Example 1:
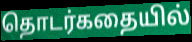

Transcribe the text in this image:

தொடர்கதையில்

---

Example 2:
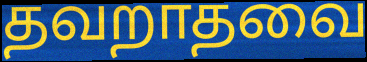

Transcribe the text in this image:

தவறாதவை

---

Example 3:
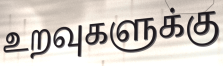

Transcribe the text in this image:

உறவுகளுக்கு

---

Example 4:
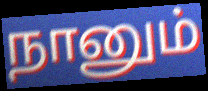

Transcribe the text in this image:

நானும்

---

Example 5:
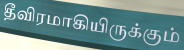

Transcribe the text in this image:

தீவிரமாகியிருக்கும்